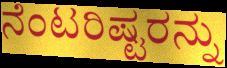
ನೆಂಟರಿಷ್ಟರನ್ನು